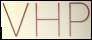
VHP